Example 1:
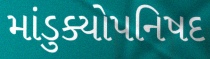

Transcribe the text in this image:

માંડુક્યોપનિષદ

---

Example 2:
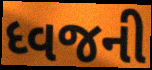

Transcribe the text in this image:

ધ્વજની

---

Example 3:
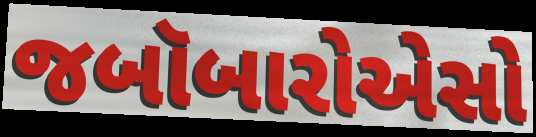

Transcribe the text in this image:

જબૉબારોએસો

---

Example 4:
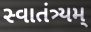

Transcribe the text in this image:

સ્વાતંત્ર્યમ્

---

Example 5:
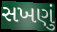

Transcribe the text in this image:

સખણું